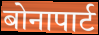
बोनापार्ट